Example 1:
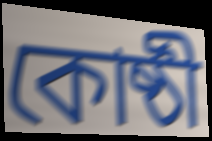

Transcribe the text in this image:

কোষ্ঠী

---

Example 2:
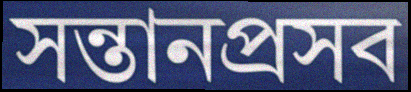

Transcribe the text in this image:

সন্তানপ্রসব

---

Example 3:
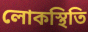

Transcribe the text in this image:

লোকস্থিতি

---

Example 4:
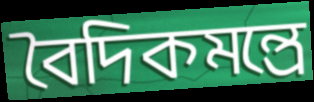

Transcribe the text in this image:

বৈদিকমন্ত্রে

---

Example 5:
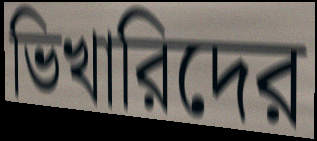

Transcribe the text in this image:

ভিখারিদের